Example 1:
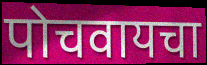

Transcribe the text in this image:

पोचवायचा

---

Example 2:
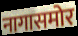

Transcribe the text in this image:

नागासमोर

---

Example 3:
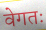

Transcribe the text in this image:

वेगतः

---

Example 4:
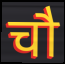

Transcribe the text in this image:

चौ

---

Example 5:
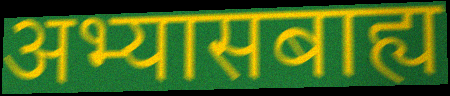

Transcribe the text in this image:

अभ्यासबाह्य